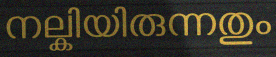
നല്കിയിരുന്നതും